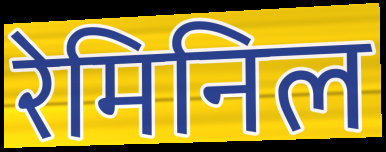
रेमिनिल